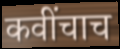
कवींचाच